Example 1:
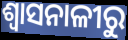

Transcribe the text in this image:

ଶ୍ୱାସନାଳୀରୁ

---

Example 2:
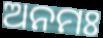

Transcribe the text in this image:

ଅନମଃ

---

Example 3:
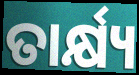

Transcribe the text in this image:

ତାର୍କ୍ଷ୍ୟ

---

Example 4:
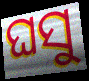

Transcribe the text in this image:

ଘସୁ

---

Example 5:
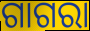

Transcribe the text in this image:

ଗାଗରା